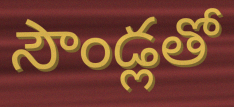
సౌండ్లతో